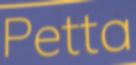
Petta